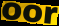
oor